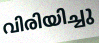
വിരിയിച്ചു